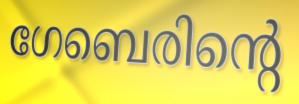
ഗേബെരിന്റെ